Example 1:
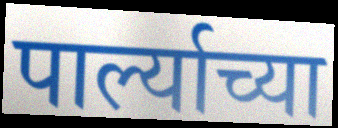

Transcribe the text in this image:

पार्ल्याच्या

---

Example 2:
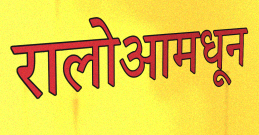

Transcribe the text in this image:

रालोआमधून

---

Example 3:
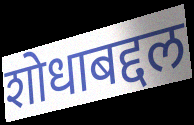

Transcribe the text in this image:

शोधाबद्दल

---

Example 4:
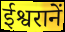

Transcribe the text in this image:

ईश्वरानें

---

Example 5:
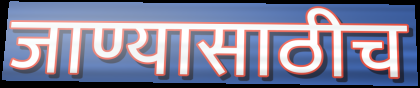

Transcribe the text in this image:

जाण्यासाठीच